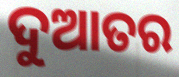
ଦୁଆତର